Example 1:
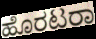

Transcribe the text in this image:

ಹೊರಟರಾ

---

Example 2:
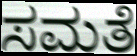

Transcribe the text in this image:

ಸಮತೆ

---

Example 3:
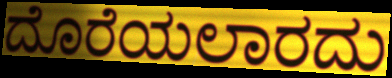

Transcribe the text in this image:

ದೊರೆಯಲಾರದು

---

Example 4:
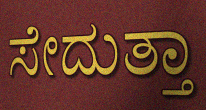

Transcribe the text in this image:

ಸೇದುತ್ತಾ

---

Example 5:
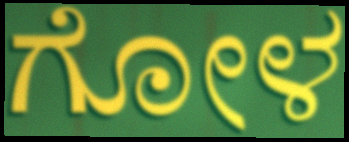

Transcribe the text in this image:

ಗೋಳ